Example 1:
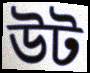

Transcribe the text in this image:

উট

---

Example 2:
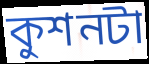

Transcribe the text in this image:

কুশনটা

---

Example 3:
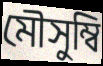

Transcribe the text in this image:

মৌসুম্বি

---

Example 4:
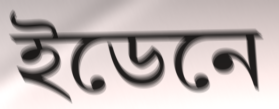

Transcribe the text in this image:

ইডেনে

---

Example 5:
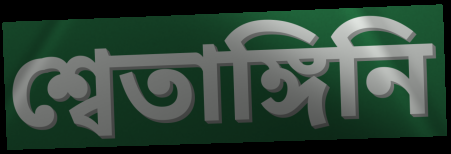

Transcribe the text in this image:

শ্বেতাঙ্গিনি